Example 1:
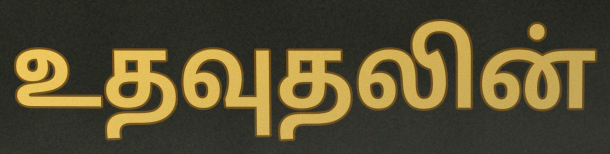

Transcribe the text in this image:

உதவுதலின்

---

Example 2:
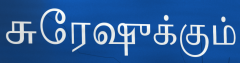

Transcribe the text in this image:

சுரேஷுக்கும்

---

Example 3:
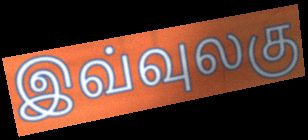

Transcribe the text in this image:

இவ்வுலகு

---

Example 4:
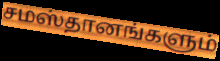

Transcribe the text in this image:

சமஸ்தானங்களும்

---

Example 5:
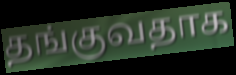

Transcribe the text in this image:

தங்குவதாக